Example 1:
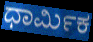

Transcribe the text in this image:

ಧಾರ್ಮಿಕ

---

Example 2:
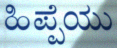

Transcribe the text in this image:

ಹಿಪ್ಪೆಯು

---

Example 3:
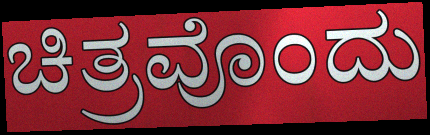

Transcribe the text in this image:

ಚಿತ್ರವೊಂದು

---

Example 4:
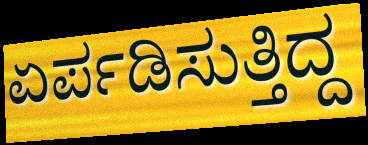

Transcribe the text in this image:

ಏರ್ಪಡಿಸುತ್ತಿದ್ದ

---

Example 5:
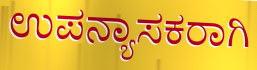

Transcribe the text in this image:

ಉಪನ್ಯಾಸಕರಾಗಿ